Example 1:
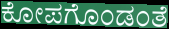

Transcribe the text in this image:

ಕೋಪಗೊಂಡಂತೆ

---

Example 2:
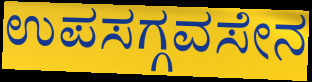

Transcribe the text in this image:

ಉಪಸಗ್ಗವಸೇನ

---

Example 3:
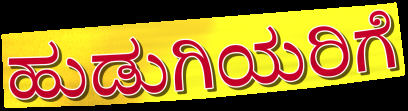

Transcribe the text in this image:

ಹುಡುಗಿಯರಿಗೆ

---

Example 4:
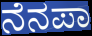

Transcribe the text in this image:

ನೆನಪಾ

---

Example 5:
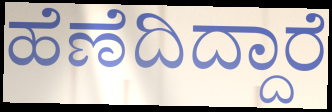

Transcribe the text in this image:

ಹೆಣೆದಿದ್ದಾರೆ